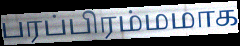
பரப்பிரம்மமாக